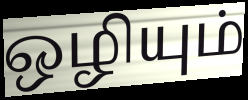
ஒழியும்